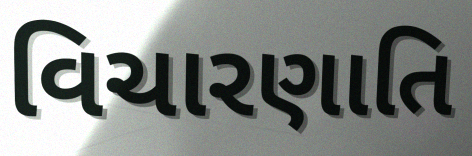
વિચારણાતિ